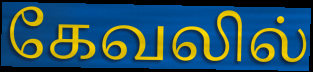
கேவலில்